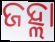
ଜହ୍ଲା